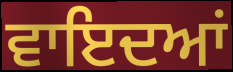
ਵਾਇਦਆਂ